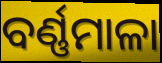
ବର୍ଣ୍ଣମାଳା